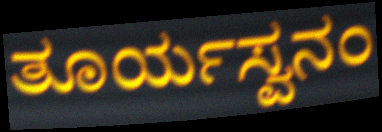
ತೂರ್ಯಸ್ವನಂ